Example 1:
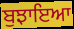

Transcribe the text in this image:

ਬੁਝਾਇਆ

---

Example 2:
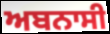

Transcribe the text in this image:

ਅਬਨਾਸੀ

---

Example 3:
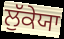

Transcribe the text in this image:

ਲੁੱਕੇਯਾ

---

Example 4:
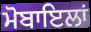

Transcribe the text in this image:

ਮੋਬਾਇਲਾਂ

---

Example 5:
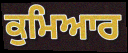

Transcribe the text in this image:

ਕੁਮਿਆਰ